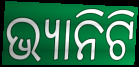
ଭ୍ୟାନିଟି